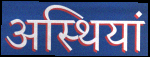
अस्थियां